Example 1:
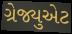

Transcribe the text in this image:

ગ્રેજ્યુએટ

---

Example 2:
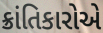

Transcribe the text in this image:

ક્રાંતિકારોએ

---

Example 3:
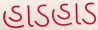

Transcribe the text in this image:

હાડહાડ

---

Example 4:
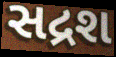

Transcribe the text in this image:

સદ્રશ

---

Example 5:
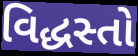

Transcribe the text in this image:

વિદ્ધસ્તો